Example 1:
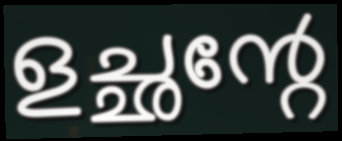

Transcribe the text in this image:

ളച്ഛന്റേ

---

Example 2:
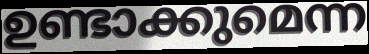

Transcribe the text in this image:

ഉണ്ടാക്കുമെന്ന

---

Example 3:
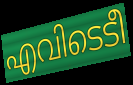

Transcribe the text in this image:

എവിടെടീ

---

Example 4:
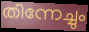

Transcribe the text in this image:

തിന്നേച്ചും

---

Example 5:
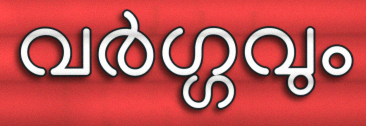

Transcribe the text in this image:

വർഗ്ഗവും